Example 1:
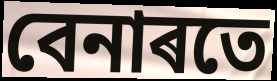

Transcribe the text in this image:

বেনাৰতে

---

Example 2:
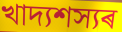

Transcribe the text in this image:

খাদ্যশস্যৰ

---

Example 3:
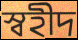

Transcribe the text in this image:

স্বহীদ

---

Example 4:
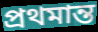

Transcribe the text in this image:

প্ৰথমান্ত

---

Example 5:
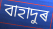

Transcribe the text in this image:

বাহাদুৰ